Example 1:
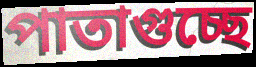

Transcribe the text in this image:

পাতাগুচ্ছে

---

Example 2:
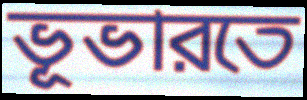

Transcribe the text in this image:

ভূভারতে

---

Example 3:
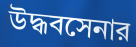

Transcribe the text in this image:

উদ্ধবসেনার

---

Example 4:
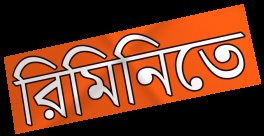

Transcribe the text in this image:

রিমিনিতে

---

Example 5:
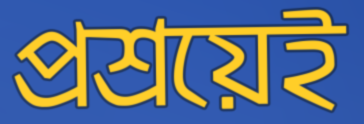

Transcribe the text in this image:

প্রশ্রয়েই